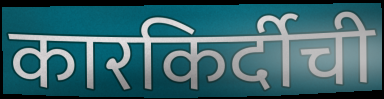
कारकिर्दीची